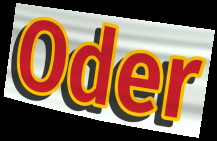
Oder